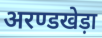
अरण्डखेड़ा